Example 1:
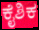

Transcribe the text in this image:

ಕೈಶಿಕ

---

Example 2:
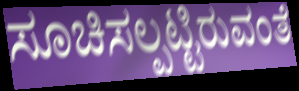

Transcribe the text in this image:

ಸೂಚಿಸಲ್ಪಟ್ಟಿರುವಂತೆ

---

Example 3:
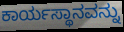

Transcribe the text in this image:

ಕಾರ್ಯಸ್ಥಾನವನ್ನು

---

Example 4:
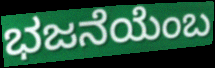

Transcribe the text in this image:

ಭಜನೆಯೆಂಬ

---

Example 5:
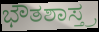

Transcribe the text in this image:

ಭೌತಶಾಸ್ತ್ರ